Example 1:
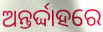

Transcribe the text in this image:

ଅନ୍ତର୍ଦ୍ଦାହରେ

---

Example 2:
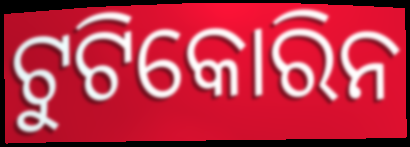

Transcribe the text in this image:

ଟୁଟିକୋରିନ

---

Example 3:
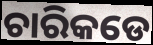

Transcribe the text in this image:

ଚାରିକଡେ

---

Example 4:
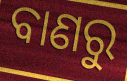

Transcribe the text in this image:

ବାଣରୁ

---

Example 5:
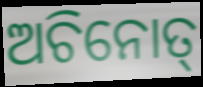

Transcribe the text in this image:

ଅଚିନୋତ୍